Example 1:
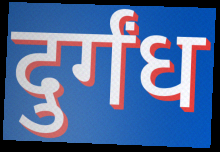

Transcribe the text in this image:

दुर्गंध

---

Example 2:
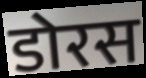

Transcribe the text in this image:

डोरस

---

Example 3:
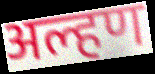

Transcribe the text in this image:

अल्हण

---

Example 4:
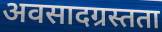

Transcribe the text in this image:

अवसादग्रस्तता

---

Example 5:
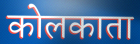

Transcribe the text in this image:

कोलकाता